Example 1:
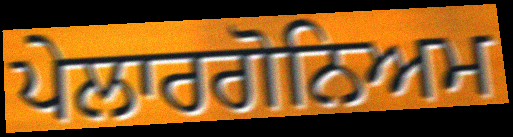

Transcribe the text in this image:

ਪੇਲਾਰਗੋਨਿਅਮ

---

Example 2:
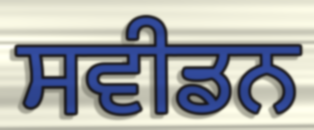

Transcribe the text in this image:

ਸਵੀਡਨ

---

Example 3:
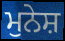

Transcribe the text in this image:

ਮੁਨੇਸ਼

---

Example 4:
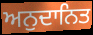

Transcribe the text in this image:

ਅਨੁਦਾਨਿਤ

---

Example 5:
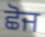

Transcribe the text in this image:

ਛੋਜ